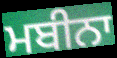
ਮਬੀਨਾ